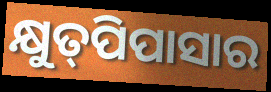
କ୍ଷୁତ୍‍ପିପାସାର